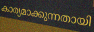
കാര്യമാക്കുന്നതായി